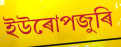
ইউৰোপজুৰি